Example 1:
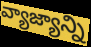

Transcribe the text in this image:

వ్యాజ్యాన్ని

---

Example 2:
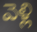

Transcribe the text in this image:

వెళ్లి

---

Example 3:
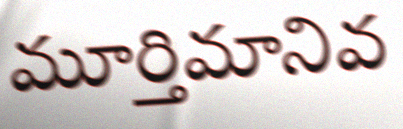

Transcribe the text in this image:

మూర్తిమానివ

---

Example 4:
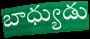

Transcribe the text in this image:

బాధ్యుడు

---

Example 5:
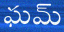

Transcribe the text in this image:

ఘమ్